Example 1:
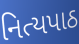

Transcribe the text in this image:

નિત્યપાઠ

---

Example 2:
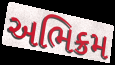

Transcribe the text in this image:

અભિક્રમ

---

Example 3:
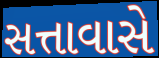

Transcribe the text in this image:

સત્તાવાસે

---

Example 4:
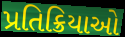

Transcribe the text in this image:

પ્રતિક્રિયાઓ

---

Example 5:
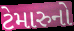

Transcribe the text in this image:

ટેમારુનો